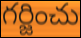
గర్జించు